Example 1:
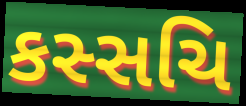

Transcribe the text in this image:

કસ્સચિ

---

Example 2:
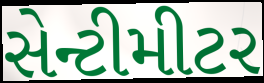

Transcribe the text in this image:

સેન્ટીમીટર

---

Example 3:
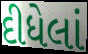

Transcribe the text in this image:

દીધેલાં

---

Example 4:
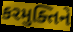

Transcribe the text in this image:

કરમુક્તિને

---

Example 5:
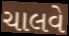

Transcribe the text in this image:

ચાલવે